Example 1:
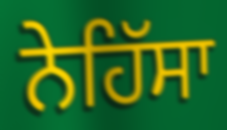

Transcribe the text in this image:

ਨੇਹਿੱਸਾ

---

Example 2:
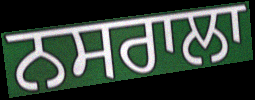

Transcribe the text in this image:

ਨਸਰਾਲਾ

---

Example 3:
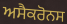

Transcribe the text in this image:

ਅਸੈਕਰੋਨਸ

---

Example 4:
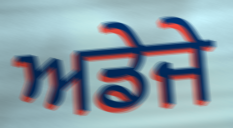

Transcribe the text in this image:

ਅਡੇਜੇ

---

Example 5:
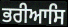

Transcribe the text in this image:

ਭਰੀਆਸਿ